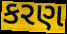
કરણ